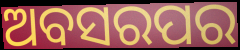
ଅବସରପର